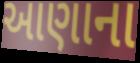
આણાના